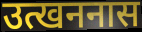
उत्खननास